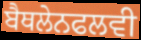
ਬੈਥਲੇਨਫਲਵੀ